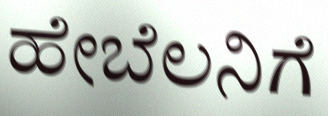
ಹೇಬೆಲನಿಗೆ